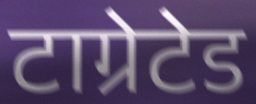
टाग्रेटेड